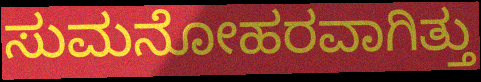
ಸುಮನೋಹರವಾಗಿತ್ತು